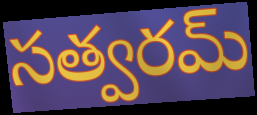
సత్వరమ్